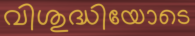
വിശുദ്ധിയോടെ